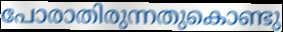
പോരാതിരുന്നതുകൊണ്ടു